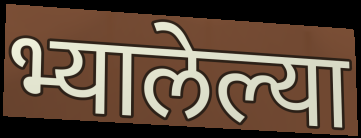
भ्यालेल्या